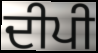
ਦੀਪੀ